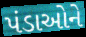
પંડાઓને